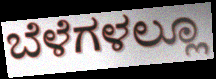
ಬೆಳೆಗಳಲ್ಲೂ